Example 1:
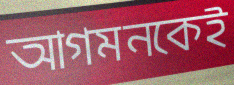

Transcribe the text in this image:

আগমনকেই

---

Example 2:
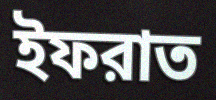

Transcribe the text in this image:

ইফরাত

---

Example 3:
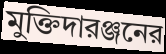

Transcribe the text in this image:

মুক্তিদারঞ্জনের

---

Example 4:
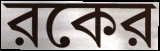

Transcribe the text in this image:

রকের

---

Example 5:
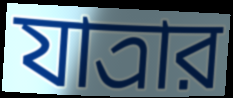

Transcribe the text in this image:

যাত্রার